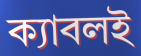
ক্যাবলই